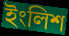
ইংলিশ